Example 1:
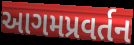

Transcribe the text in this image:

આગમપ્રવર્તન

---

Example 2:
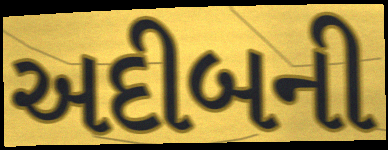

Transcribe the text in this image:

અદીબની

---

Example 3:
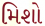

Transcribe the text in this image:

મિશો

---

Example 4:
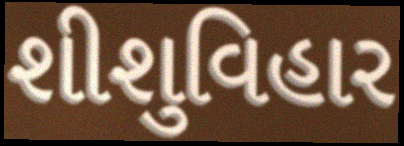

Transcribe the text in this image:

શીશુવિહાર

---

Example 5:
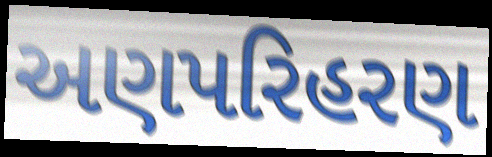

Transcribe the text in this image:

અણપરિહરણ